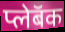
प्लेबॅक